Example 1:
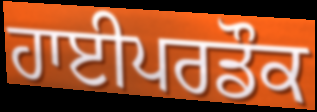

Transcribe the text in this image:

ਹਾਈਪਰਡੌਕ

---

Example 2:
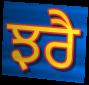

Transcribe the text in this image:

ਝਰੈ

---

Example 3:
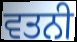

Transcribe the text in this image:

ਵਤਨੀ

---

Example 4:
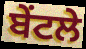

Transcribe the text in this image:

ਬੇਂਟਲੇ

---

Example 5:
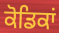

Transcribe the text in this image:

ਕੋਡਿਕਾਂ